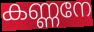
കണ്ണനേ